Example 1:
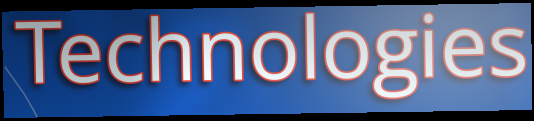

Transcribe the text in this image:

Technologies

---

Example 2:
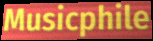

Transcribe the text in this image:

Musicphile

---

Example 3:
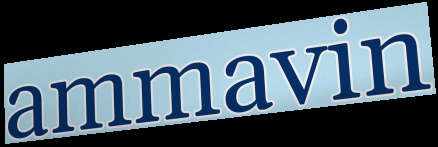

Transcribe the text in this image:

ammavin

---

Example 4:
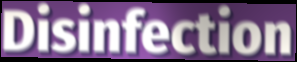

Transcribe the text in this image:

Disinfection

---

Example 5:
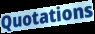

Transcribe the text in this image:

Quotations